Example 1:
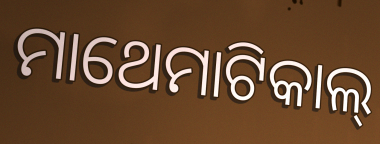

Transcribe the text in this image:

ମାଥେମାଟିକାଲ୍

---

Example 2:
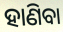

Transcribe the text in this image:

ହାଣିବା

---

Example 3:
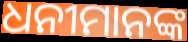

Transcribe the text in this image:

ଧନୀମାନଙ୍କ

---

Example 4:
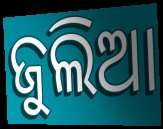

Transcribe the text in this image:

ଜୁଲିଆ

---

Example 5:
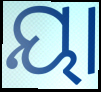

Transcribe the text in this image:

ୟା